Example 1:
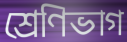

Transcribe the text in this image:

শ্রেণিভাগ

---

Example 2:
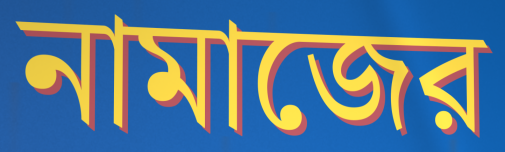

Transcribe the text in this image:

নামাজের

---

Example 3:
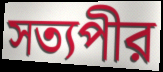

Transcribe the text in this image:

সত্যপীর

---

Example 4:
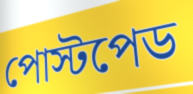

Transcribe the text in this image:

পোস্টপেড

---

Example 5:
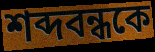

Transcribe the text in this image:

শব্দবন্ধকে